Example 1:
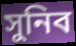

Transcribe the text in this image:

সুনিব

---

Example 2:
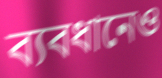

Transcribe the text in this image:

ব্যবধানেও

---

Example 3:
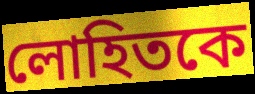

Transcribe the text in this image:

লোহিতকে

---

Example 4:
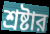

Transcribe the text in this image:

শ্রষ্টার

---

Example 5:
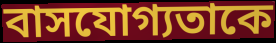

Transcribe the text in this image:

বাসযোগ্যতাকে